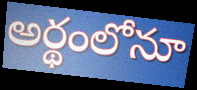
అర్థంలోనూ